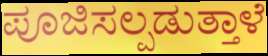
ಪೂಜಿಸಲ್ಪಡುತ್ತಾಳೆ